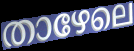
താഴേലെ